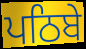
ਪਠਿਬੇ